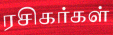
ரசிகர்கள்